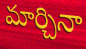
మార్చినా